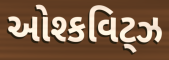
ઓશ્કવિટ્ઝ